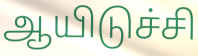
ஆயிடுச்சி